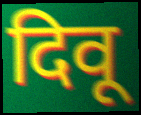
दिवू